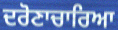
ਦਰੋਣਾਚਾਰਿਆ